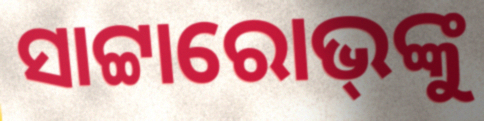
ସାଟ୍ଟାରୋଭ୍‌ଙ୍କୁ